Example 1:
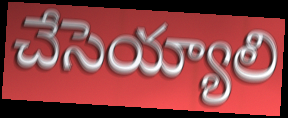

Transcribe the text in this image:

చేసెయ్యాలి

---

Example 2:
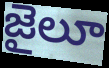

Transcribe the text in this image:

జైలూ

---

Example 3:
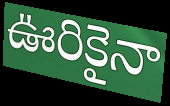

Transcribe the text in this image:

ఊరికైనా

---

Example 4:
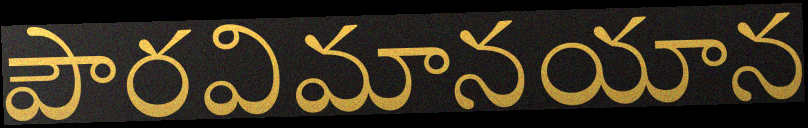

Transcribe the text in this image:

పౌరవిమానయాన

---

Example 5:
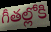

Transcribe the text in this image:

గీతల్లోకి